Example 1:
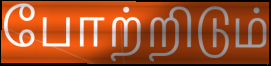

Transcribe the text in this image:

போற்றிடும்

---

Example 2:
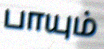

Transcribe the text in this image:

பாயும்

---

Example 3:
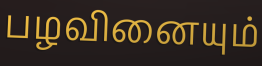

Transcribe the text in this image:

பழவினையும்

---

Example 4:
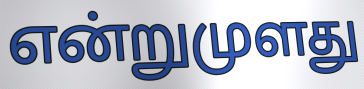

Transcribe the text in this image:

என்றுமுளது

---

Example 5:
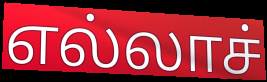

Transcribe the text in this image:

எல்லாச்